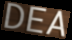
DEA